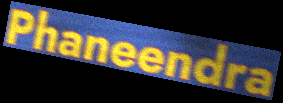
Phaneendra